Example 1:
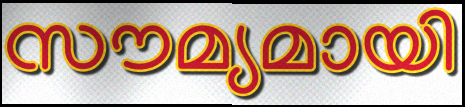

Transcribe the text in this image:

സൗമ്യമായി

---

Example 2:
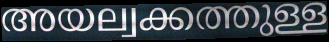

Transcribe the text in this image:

അയല്വക്കത്തുള്ള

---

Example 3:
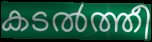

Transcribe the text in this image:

കടൽത്തീ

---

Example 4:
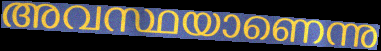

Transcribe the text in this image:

അവസ്ഥയാണെന്നു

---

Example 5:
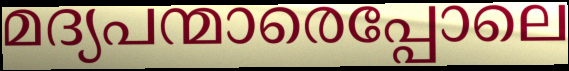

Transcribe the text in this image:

മദ്യപന്മാരെപ്പോലെ